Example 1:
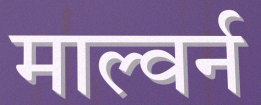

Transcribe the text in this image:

माल्वर्न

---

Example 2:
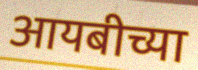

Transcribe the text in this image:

आयबीच्या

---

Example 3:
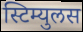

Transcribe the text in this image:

स्टिम्युलस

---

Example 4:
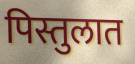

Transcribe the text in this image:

पिस्तुलात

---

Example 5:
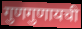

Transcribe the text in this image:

गुणगुणायची